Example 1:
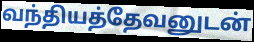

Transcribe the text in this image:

வந்தியத்தேவனுடன்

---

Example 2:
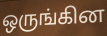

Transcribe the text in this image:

ஒருங்கின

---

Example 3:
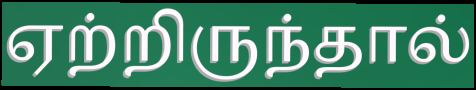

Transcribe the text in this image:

ஏற்றிருந்தால்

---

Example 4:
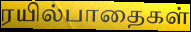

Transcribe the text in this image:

ரயில்பாதைகள்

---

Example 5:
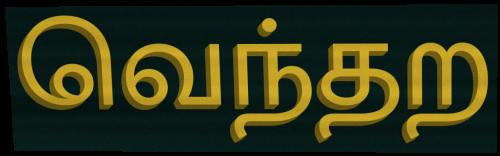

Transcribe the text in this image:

வெந்தற